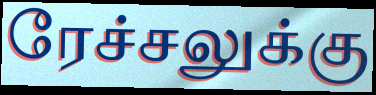
ரேச்சலுக்கு